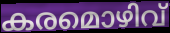
കരമൊഴിവ്